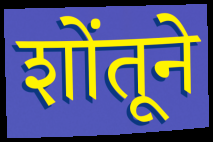
शोंतूने